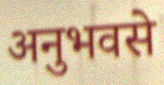
अनुभवसे